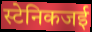
स्टेनिकजई